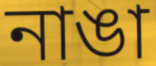
নাঙা